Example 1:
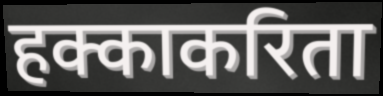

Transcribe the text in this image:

हक्काकरिता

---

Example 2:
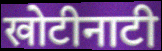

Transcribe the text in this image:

खोटीनाटी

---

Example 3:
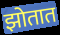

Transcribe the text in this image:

झोतात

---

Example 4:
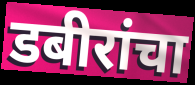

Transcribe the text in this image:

डबीरांचा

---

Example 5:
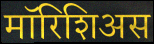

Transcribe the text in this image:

मॉरिशिअस